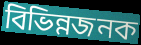
বিভিন্নজনক